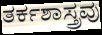
ತರ್ಕಶಾಸ್ತ್ರವು